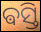
ଵସ୍ତି